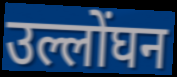
उल्लोंघन